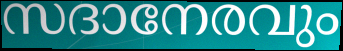
സദാനേരവും